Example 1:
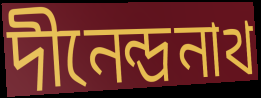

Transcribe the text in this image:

দীনেন্দ্রনাথ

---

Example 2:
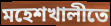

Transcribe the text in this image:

মহেশখালীতে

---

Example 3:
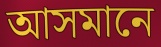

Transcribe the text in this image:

আসমানে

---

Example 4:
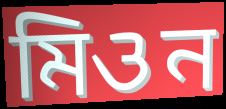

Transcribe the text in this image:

মিওন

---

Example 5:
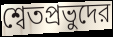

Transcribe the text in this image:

শ্বেতপ্রভুদের